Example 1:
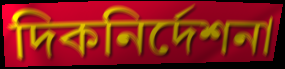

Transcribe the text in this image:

দিকনির্দেশনা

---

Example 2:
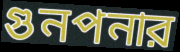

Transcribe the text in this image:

গুনপনার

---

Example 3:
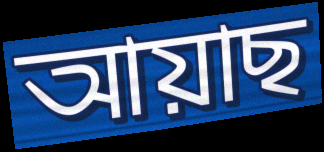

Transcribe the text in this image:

আয়াছ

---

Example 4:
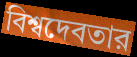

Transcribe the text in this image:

বিশ্বদেবতার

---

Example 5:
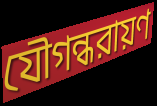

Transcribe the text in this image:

যৌগন্ধরায়ণ